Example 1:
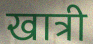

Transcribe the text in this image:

खात्री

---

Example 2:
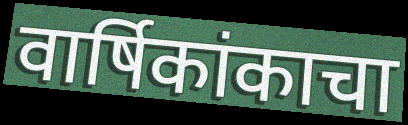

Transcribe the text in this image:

वार्षिकांकाचा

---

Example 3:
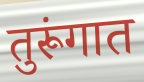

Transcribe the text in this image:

तुरूंगात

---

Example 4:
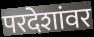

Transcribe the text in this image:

परदेशांवर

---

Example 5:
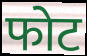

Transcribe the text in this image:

फोट